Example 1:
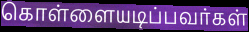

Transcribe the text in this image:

கொள்ளையடிப்பவர்கள்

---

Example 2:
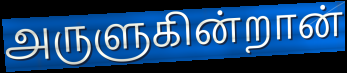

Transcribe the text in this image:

அருளுகின்றான்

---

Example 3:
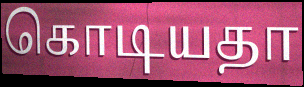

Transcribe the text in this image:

கொடியதா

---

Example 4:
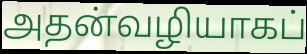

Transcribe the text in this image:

அதன்வழியாகப்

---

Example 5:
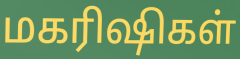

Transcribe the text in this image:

மகரிஷிகள்